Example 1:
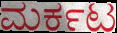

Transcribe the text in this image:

ಮರ್ಕಟ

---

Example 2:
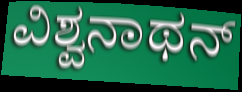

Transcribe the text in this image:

ವಿಶ್ವನಾಥನ್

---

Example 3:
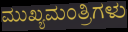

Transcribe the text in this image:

ಮುಖ್ಯಮಂತ್ರಿಗಳು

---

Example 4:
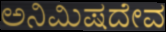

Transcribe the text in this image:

ಅನಿಮಿಷದೇವ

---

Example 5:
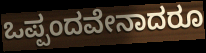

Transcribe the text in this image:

ಒಪ್ಪಂದವೇನಾದರೂ